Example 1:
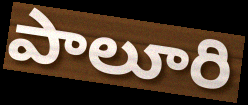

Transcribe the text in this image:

పాలూరి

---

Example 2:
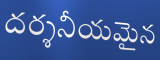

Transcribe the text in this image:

దర్శనీయమైన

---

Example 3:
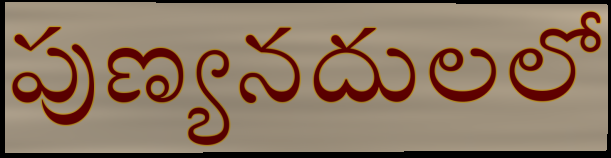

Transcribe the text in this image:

పుణ్యనదులలో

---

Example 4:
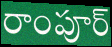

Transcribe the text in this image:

రాంపూర్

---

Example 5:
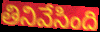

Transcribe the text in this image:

తినివేసింది